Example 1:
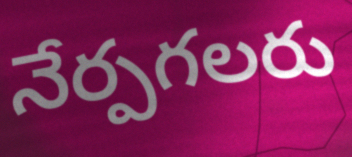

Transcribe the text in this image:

నేర్పగలరు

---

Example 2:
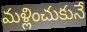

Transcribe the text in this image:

మళ్లించుకునే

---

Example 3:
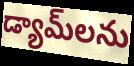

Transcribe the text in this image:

డ్యామ్‌లను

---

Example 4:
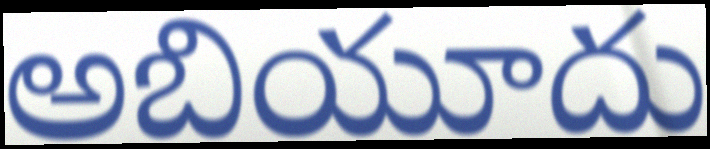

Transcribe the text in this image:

అబియూదు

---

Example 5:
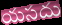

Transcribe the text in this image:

యసదు